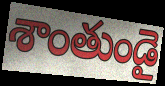
శాంతుండై